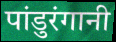
पांडुरंगानी